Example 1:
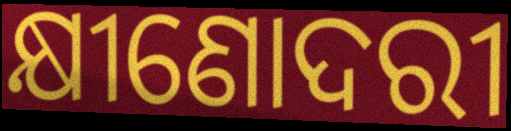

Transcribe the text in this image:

କ୍ଷୀଣୋଦରୀ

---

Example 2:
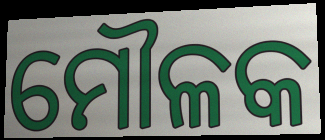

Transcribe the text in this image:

ମୌଳକ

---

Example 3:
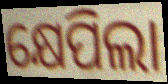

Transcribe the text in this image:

କ୍ଷେପିଲା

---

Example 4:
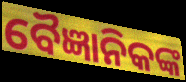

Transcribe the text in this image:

ବୈଜ୍ଞାନିକଙ୍କ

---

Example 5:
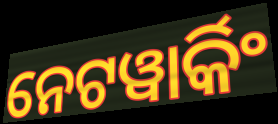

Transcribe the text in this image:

ନେଟୱାର୍କିଂ